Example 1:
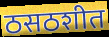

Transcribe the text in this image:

ठसठशीत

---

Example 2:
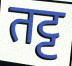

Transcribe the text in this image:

तट्ट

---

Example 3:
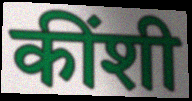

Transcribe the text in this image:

कींशी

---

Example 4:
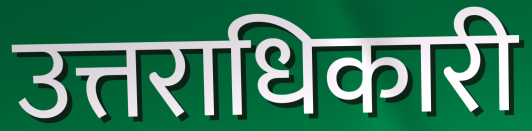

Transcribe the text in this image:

उत्तराधिकारी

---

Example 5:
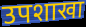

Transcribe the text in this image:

उपशाखा